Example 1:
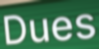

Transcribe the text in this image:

Dues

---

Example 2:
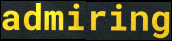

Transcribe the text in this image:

admiring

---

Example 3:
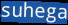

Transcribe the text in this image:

suhega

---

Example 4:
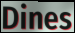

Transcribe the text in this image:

Dines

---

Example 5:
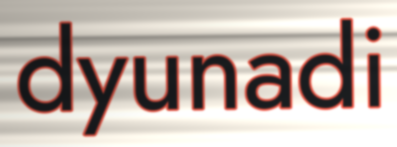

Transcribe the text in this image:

dyunadi